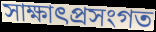
সাক্ষাৎপ্ৰসংগত